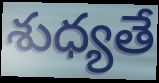
శుధ్యతే